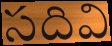
సదివి